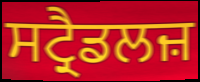
ਸਟ੍ਰੈਡਲਜ਼